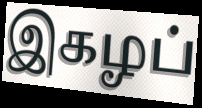
இகழப்